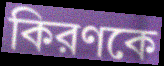
কিরণকে